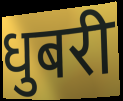
धुबरी